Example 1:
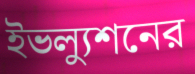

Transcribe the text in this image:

ইভল্যুশনের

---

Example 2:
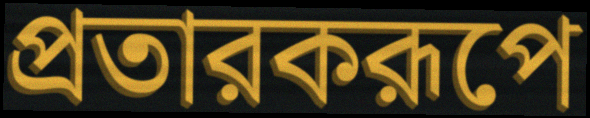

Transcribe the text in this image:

প্রতারকরূপে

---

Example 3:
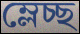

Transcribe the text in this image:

ম্লেচ্ছ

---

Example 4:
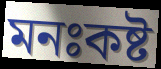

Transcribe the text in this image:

মনঃকষ্ট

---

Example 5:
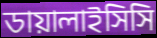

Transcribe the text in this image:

ডায়ালাইসিসি